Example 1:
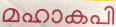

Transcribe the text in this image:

മഹാകപി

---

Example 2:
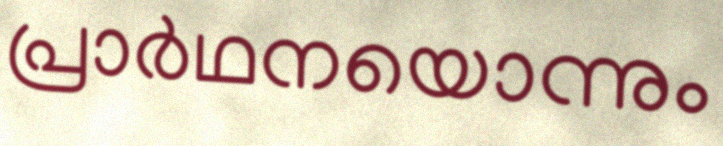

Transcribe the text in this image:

പ്രാർഥനയൊന്നും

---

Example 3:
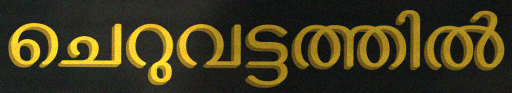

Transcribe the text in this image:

ചെറുവട്ടത്തിൽ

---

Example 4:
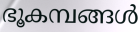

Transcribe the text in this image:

ഭൂകമ്പങ്ങൾ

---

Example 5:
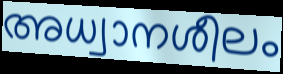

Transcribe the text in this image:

അധ്വാനശീലം